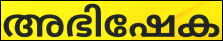
അഭിഷേക